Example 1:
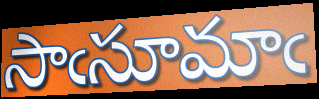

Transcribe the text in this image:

సాఁసూమాఁ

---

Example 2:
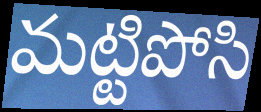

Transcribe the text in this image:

మట్టిపోసి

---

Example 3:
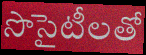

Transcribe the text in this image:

సొసైటీలతో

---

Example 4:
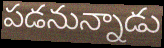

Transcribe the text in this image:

పడనున్నాడు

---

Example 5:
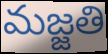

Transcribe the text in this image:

మజ్జతి